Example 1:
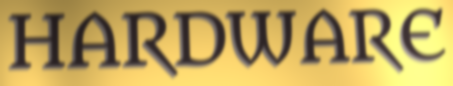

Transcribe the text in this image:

HARDWARE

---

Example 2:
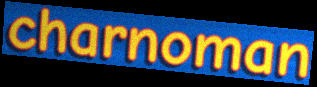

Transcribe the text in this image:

charnoman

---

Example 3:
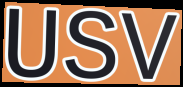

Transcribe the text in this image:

USV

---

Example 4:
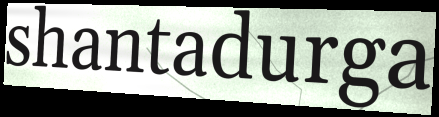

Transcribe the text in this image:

shantadurga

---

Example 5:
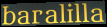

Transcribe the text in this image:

baralilla